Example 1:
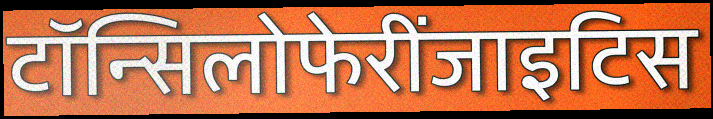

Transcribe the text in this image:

टॉन्सिलोफेरींजाइटिस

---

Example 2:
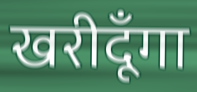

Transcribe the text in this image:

खरीदूँगा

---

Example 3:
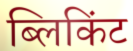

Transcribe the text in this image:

ब्लिकिंट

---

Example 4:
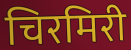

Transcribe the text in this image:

चिरमिरी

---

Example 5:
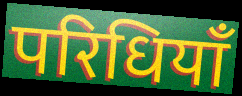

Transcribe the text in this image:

परिधियाँ